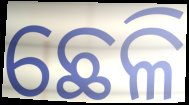
ଛେଳି